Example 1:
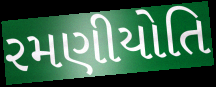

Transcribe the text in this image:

રમણીયોતિ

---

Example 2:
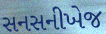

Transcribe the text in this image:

સનસનીખેજ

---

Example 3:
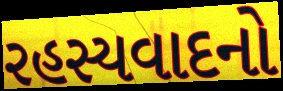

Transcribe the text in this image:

રહસ્યવાદનો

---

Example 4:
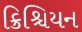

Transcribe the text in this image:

ક્રિશ્ચિયન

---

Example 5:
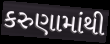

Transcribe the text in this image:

કરુણામાંથી